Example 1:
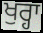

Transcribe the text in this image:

ਖੁਰ੍ਹਾ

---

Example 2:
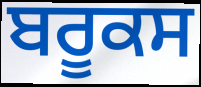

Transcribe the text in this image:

ਬਰੂਕਸ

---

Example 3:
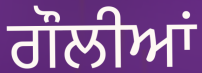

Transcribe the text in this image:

ਗੌਲੀਆਂ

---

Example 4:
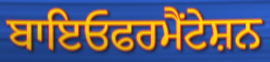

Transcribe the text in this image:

ਬਾਇਓਫਰਮੈਂਟੇਸ਼ਨ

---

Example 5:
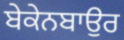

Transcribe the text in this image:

ਬੇਕੇਨਬਾਉਰ